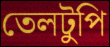
তেলটুপি